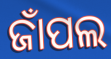
ଜାଁପଲ